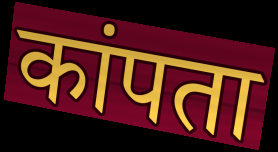
कांपता